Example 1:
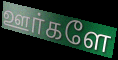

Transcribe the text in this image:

ஊர்களே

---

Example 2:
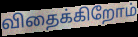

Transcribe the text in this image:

விதைக்கிறோம்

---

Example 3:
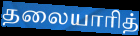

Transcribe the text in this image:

தலையாரித்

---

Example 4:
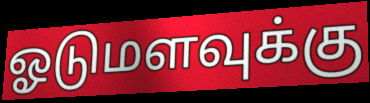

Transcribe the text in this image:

ஓடுமளவுக்கு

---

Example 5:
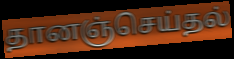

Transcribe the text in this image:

தானஞ்செய்தல்